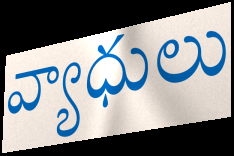
వ్యాధులు